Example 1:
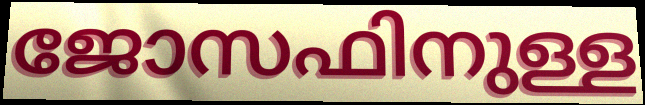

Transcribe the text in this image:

ജോസഫിനുള്ള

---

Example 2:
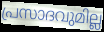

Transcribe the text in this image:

പ്രസാദവുമില്ല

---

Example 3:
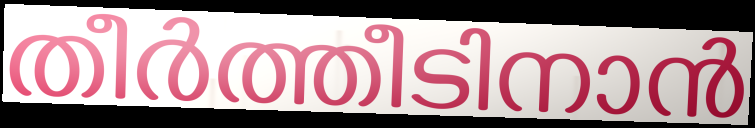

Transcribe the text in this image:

തീർത്തീടിനാൻ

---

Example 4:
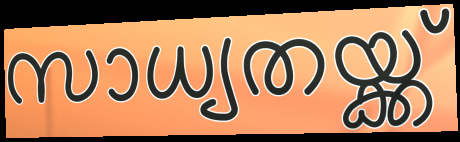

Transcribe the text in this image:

സാധ്യതയ്ക്ക്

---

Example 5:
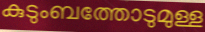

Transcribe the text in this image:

കുടുംബത്തോടുമുള്ള